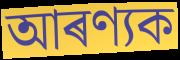
আৰণ্যক